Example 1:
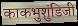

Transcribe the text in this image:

काकभुशुंडिजी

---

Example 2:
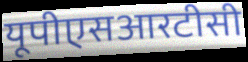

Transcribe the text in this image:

यूपीएसआरटीसी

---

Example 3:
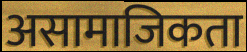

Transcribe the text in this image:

असामाजिकता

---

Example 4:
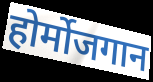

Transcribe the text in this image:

होर्मोजगान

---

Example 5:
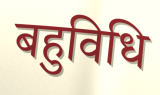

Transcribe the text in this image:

बहुविधि